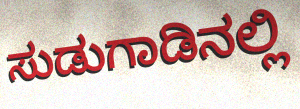
ಸುಡುಗಾಡಿನಲ್ಲಿ